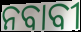
ନବାବୀ